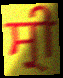
ਸ੍ਰੀ